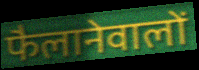
फैलानेवालों